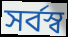
সৰ্বস্ব